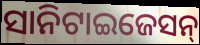
ସାନିଟାଇଜେସନ୍